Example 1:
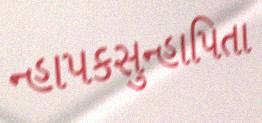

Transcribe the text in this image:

ન્હાપકસુન્હાપિતા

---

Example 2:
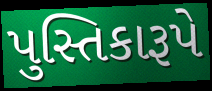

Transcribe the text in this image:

પુસ્તિકારૂપે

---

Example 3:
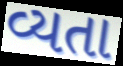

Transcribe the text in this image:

વ્યતા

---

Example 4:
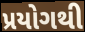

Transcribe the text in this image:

પ્રયોગથી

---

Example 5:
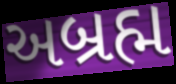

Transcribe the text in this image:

અબ્રહ્મ